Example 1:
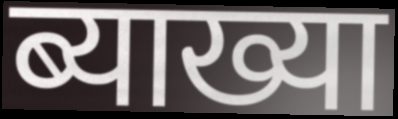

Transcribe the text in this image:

ब्याख्या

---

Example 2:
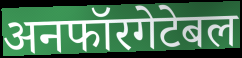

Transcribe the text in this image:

अनफॉरगेटेबल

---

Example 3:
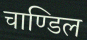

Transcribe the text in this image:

चाण्डिल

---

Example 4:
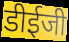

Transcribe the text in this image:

डीईजी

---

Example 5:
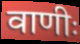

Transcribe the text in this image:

वाणीः